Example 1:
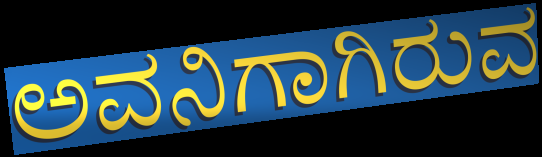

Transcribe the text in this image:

ಅವನಿಗಾಗಿರುವ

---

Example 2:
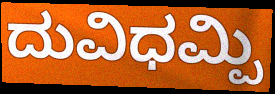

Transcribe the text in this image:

ದುವಿಧಮ್ಪಿ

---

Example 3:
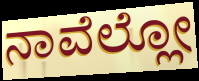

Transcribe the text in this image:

ನಾವೆಲ್ಲೋ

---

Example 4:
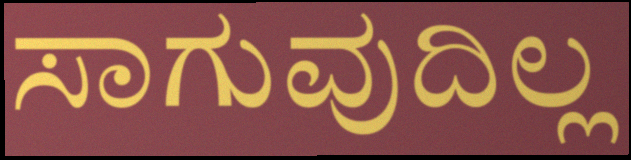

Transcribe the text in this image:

ಸಾಗುವುದಿಲ್ಲ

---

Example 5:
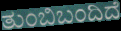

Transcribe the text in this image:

ತುಂಬಿಬಂದಿದೆ